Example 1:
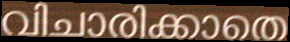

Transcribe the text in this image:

വിചാരിക്കാതെ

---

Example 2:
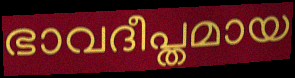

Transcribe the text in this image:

ഭാവദീപ്തമായ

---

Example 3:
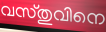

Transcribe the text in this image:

വസ്തുവിനെ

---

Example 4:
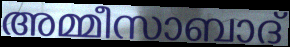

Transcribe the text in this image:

അമ്മീസാബാദ്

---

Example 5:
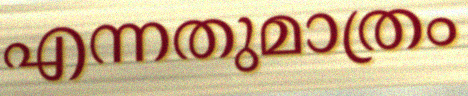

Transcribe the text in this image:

എന്നതുമാത്രം